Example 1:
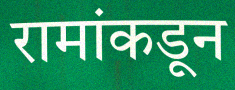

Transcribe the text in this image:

रामांकडून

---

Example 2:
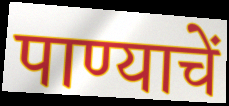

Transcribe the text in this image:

पाण्याचें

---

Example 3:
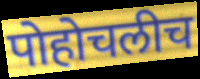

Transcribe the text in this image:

पोहोचलीच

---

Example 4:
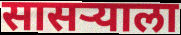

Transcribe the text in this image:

सासर्‍याला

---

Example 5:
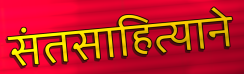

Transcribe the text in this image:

संतसाहित्याने